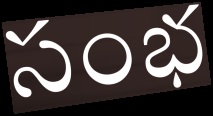
సంభ